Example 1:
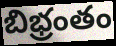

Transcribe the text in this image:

బిభ్రంతం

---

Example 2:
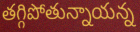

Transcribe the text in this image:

తగ్గిపోతున్నాయన్న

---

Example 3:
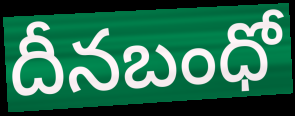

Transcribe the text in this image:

దీనబంధో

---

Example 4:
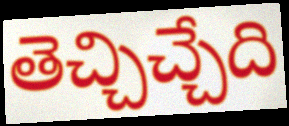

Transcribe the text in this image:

తెచ్చిచ్చేది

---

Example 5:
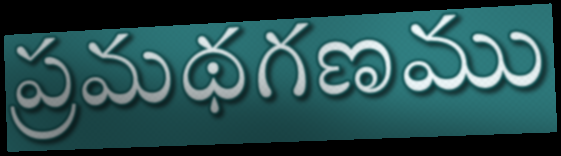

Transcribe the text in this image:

ప్రమథగణము